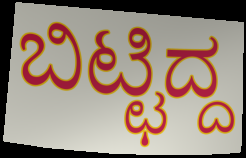
ಬಿಟ್ಟಿದ್ದ